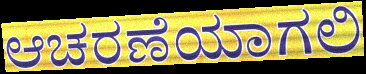
ಆಚರಣೆಯಾಗಲಿ